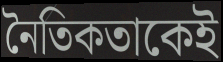
নৈতিকতাকেই